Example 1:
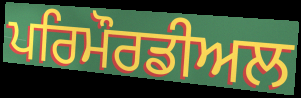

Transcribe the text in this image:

ਪਰਿਮੌਰਡੀਅਲ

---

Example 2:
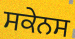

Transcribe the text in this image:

ਸਕੇਨਸ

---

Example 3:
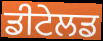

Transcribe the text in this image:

ਡੀਟੇਲਡ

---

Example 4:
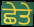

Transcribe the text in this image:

ਛੇਤੇ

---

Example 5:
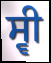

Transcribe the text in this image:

ਸ੍ਵੀ